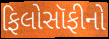
ફિલોસૉફીનો